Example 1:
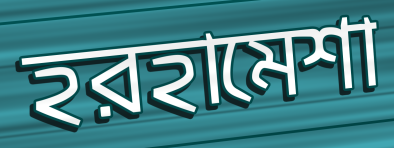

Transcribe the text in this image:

হরহামেশা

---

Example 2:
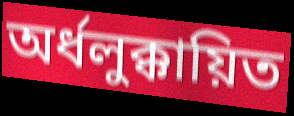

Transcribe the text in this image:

অর্ধলুক্কায়িত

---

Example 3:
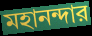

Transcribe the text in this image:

মহানন্দার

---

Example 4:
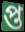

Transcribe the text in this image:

প্ত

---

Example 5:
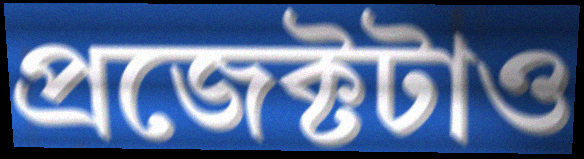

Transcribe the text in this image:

প্রজেক্টটাও